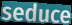
seduce